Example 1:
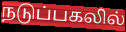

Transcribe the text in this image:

நடுப்பகலில்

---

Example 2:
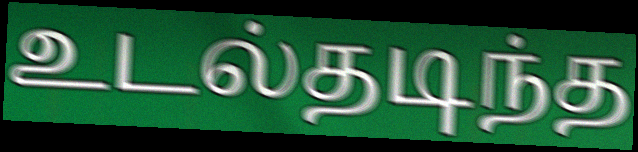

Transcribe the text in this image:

உடல்தடிந்த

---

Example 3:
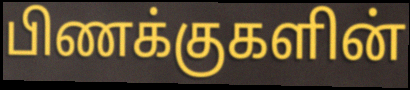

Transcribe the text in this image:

பிணக்குகளின்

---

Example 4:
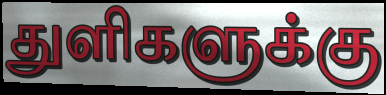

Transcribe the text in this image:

துளிகளுக்கு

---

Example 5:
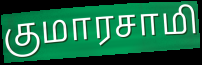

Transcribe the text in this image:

குமாரசாமி